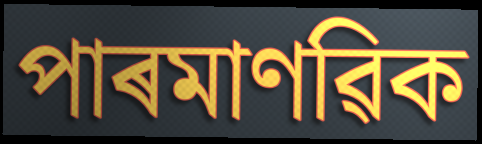
পাৰমাণৱিক